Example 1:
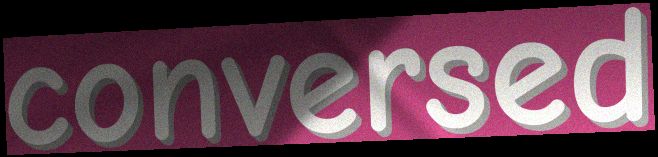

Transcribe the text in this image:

conversed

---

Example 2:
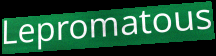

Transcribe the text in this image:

Lepromatous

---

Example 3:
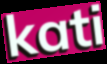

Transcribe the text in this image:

kati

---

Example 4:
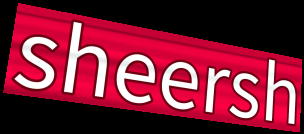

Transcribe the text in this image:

sheersh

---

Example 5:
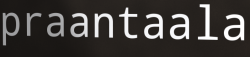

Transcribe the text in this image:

praantaala